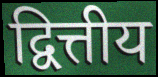
द्वित्तीय